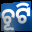
ଚୂଟି